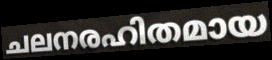
ചലനരഹിതമായ